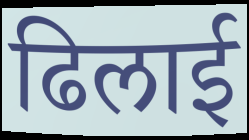
ढिलाई